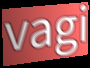
vagi